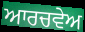
ਆਰਚਵੇਅ